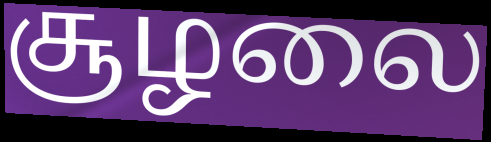
சூழலை